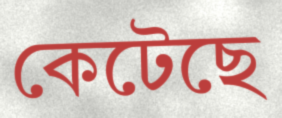
কেটেছে